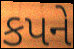
કપને